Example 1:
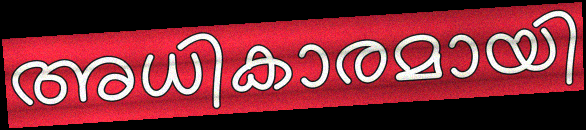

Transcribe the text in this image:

അധികാരമായി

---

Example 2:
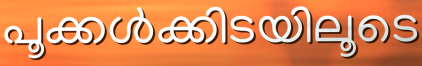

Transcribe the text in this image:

പൂക്കൾക്കിടയിലൂടെ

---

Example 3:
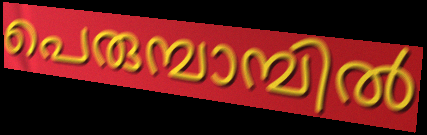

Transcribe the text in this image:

പെരുമ്പാമ്പിൽ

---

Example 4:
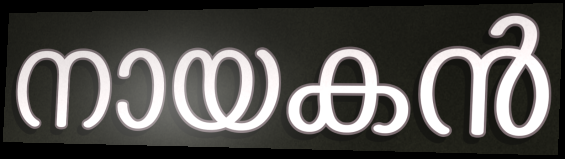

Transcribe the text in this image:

നായകൻ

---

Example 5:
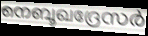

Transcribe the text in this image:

നെബൂഖദ്രേസർ